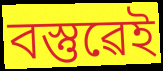
বস্তুৱেই